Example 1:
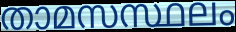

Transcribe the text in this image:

താമസസ്ഥലം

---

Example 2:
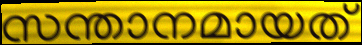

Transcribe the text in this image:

സന്താനമായത്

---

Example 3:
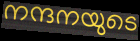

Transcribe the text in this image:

നന്ദനയുടെ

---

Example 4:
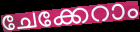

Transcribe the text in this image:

ചേക്കേറാം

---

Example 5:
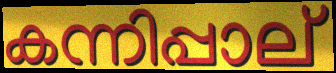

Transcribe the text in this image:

കന്നിപ്പാല്